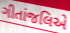
ગીતાંજલિએ